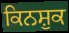
ਕਿਨਸ਼ੁਕ